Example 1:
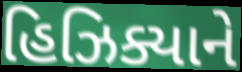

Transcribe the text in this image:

હિઝિક્યાને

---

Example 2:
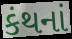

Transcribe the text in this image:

કંથનાં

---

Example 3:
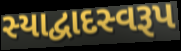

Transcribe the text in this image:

સ્યાદ્વાદસ્વરૂપ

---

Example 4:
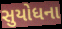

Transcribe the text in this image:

સુયોધના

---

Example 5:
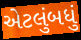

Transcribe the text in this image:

એટલુંબધું